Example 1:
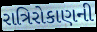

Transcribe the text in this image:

રાત્રિરોકાણની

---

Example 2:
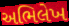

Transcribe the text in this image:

અભિલેખ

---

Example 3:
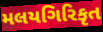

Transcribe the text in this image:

મલયગિરિકૃત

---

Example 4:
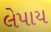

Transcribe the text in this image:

લેપાય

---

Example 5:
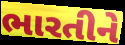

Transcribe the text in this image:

ભારતીને